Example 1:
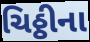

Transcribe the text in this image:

ચિઠ્ઠીના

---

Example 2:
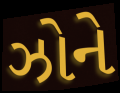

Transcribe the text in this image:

ઝોને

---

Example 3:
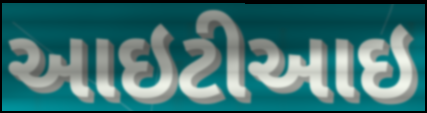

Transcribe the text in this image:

આઇટીઆઇ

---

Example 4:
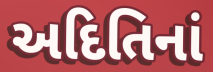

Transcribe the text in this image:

અદિતિનાં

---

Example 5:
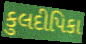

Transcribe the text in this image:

કુલદીપિકા